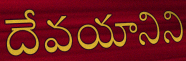
దేవయానిని